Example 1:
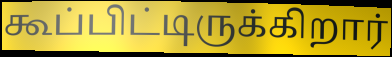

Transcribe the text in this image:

கூப்பிட்டிருக்கிறார்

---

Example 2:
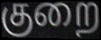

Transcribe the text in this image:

குறை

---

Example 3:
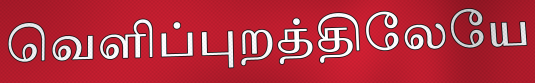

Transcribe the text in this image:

வெளிப்புறத்திலேயே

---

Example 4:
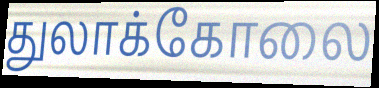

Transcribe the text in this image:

துலாக்கோலை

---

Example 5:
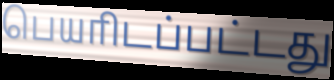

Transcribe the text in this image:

பெயரிடப்பட்டது